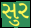
સુર